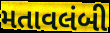
મતાવલંબી